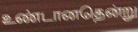
உண்டானதென்று